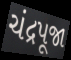
ચંદ્રપૂજા